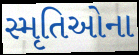
સ્મૃતિઓના